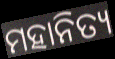
ମହାନିତ୍ୟ